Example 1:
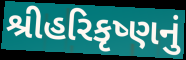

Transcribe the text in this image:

શ્રીહરિકૃષ્ણનું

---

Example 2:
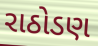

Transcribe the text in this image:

રાઠોડણ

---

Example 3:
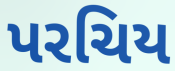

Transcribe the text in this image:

પરચિય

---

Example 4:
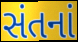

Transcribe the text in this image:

સંતનાં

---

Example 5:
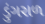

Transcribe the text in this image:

ડુંગરાળ